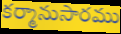
కర్మానుసారము